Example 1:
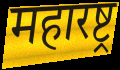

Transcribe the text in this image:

महारष्ट्र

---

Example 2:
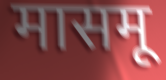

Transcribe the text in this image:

मासमू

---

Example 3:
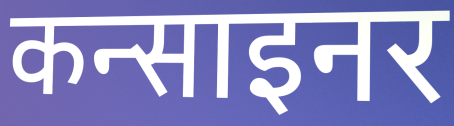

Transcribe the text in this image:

कन्साइनर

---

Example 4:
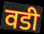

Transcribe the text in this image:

वडी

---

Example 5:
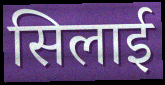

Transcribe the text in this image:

सिलाई